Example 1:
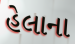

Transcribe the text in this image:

હેલાના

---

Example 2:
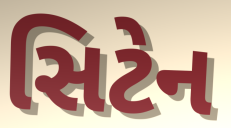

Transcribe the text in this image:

સિટેન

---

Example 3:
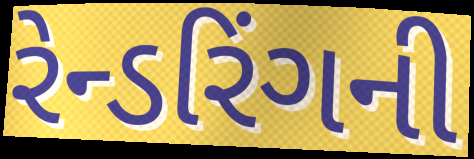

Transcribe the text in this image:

રેન્ડરિંગની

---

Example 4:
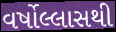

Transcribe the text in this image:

વર્ષોલ્લાસથી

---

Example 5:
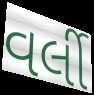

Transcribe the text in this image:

વર્લી